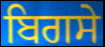
ਬਿਗਸੇ